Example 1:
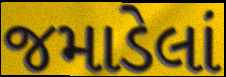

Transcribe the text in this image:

જમાડેલાં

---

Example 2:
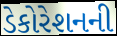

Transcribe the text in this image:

ડેકોરેશનની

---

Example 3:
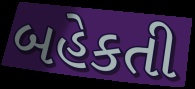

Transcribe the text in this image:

બહેકતી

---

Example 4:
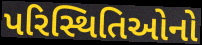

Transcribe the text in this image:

પરિસ્થિતિઓનો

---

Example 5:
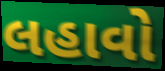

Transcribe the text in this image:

લહાવો